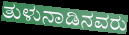
ತುಳುನಾಡಿನವರು